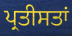
ਪ੍ਰਤੀਸਤਾਂ